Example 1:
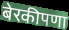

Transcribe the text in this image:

बेरकीपणा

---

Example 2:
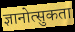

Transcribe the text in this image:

ज्ञानोत्सुकता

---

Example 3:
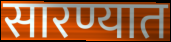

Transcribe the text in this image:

सारण्यात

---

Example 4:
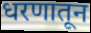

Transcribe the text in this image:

धरणातून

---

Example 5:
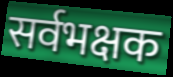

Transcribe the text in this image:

सर्वभक्षक